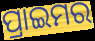
ପ୍ରାଇମର